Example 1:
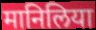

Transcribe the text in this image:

मानिलिया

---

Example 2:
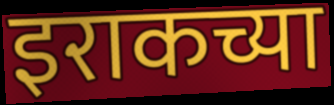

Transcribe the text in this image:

इराकच्या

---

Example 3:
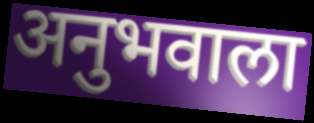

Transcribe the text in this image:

अनुभवाला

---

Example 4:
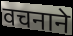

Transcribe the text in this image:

वचनाने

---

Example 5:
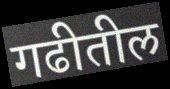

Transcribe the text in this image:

गढीतील